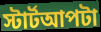
স্টার্টআপটা